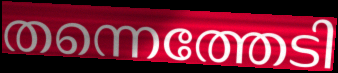
തന്നെത്തേടി